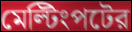
মেল্টিংপটের